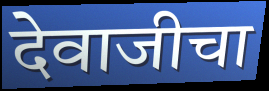
देवाजीचा